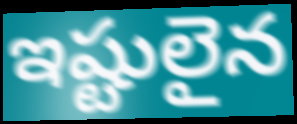
ఇష్టులైన